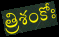
త్రిశంకోః